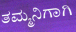
ತಮ್ಮನಿಗಾಗಿ